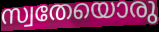
സ്വതേയൊരു